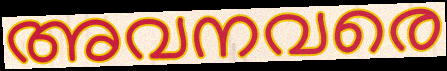
അവനവരെ